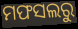
ମଫସଲରୁ